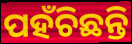
ପହଁଚିଛନ୍ତି